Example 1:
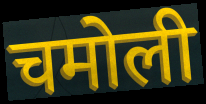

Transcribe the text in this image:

चमोली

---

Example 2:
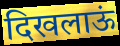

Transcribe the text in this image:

दिखलाऊं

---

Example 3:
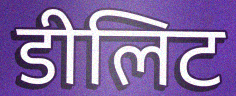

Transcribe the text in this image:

डीलिट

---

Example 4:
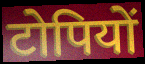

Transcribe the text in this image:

टोपियों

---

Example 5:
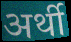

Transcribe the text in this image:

अर्थी